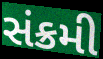
સંક્રમી